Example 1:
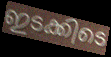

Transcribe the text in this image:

ഇടക്കിടെ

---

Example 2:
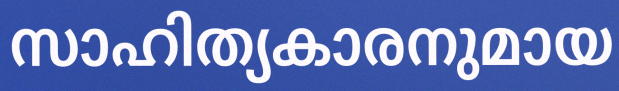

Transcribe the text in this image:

സാഹിത്യകാരനുമായ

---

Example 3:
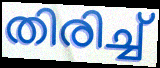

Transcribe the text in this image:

തിരിച്ച്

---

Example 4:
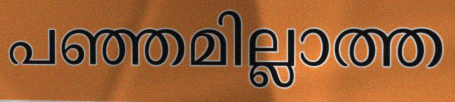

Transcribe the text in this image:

പഞ്ഞമില്ലാത്ത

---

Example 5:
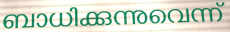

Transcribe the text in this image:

ബാധിക്കുന്നുവെന്ന്